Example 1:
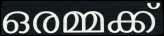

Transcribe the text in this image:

ഒരമ്മക്ക്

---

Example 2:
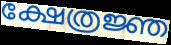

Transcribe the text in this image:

ക്ഷേത്രജ്ഞ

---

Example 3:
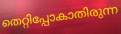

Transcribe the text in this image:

തെറ്റിപ്പോകാതിരുന്ന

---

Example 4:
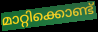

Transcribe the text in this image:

മാറ്റിക്കൊണ്ട്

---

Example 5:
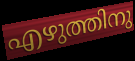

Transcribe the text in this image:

എഴുത്തിനു